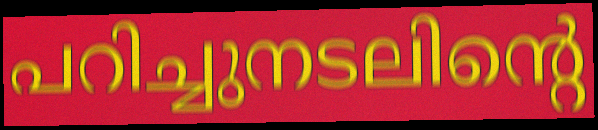
പറിച്ചുനടലിന്റെ